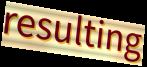
resulting